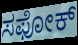
ಸಫೋಕ್